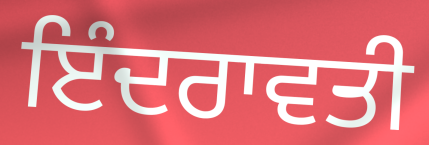
ਇੰਦਰਾਵਤੀ